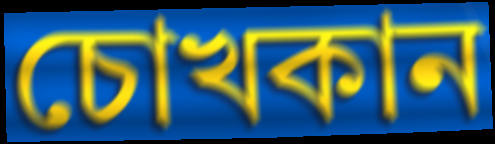
চোখকান